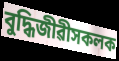
বুদ্ধিজীৱীসকলক